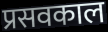
प्रसवकाल